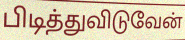
பிடித்துவிடுவேன்